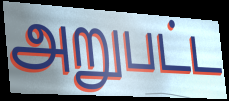
அறுபட்ட